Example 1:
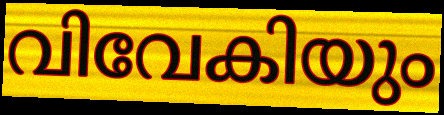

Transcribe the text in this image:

വിവേകിയും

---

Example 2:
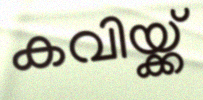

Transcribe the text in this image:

കവിയ്ക്ക്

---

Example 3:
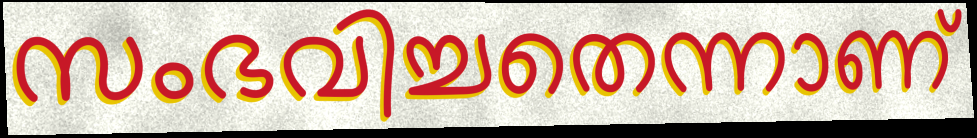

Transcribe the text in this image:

സംഭവിച്ചതെന്നാണ്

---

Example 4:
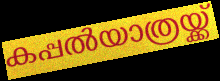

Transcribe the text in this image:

കപ്പൽയാത്രയ്ക്ക്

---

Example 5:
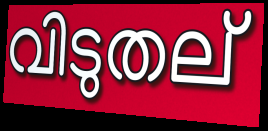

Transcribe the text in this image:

വിടുതല്